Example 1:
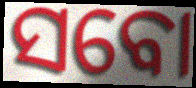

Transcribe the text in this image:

ସବୋ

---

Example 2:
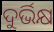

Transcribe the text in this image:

ଦୁର୍ଭିକ୍ଷ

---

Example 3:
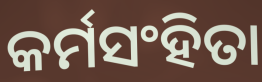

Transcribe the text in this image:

କର୍ମସଂହିତା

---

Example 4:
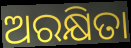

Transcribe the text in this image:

ଅରକ୍ଷିତା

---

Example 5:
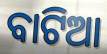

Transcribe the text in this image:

ବାଟିଆ